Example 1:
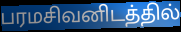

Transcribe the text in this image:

பரமசிவனிடத்தில்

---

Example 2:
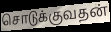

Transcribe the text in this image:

சொடுக்குவதன்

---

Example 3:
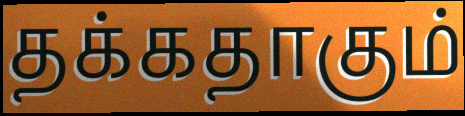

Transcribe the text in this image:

தக்கதாகும்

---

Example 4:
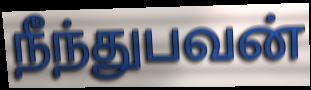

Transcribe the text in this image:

நீந்துபவன்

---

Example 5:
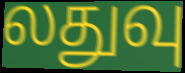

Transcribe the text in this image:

லதுவு